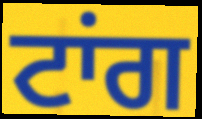
ਟਾਂਗ